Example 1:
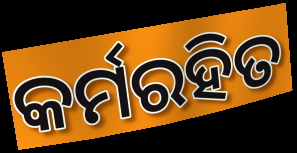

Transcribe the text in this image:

କର୍ମରହିତ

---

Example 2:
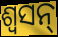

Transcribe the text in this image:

ଶ୍ୱସନ୍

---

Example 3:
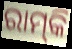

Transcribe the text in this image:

ରାମ୍‌କି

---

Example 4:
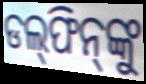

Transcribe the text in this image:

ଡଲ୍‌ଫିନ୍‌ଙ୍କୁ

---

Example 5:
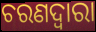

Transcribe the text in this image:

ଚରଣଦ୍ୱାରା